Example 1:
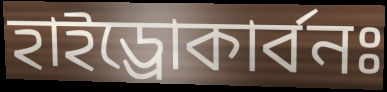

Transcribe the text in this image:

হাইড্রোকার্বনঃ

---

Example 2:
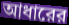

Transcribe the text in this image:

আধারের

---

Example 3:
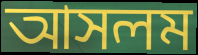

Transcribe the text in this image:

আসলম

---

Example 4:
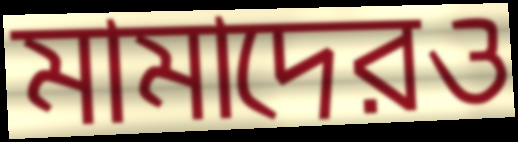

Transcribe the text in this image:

মামাদেরও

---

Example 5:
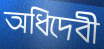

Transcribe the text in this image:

অধিদেবী